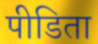
पीडिता